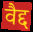
वैद्द